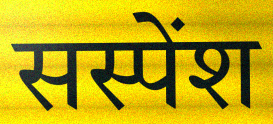
सस्पेंश